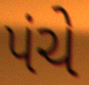
પંચે